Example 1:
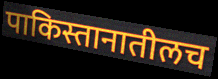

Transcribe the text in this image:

पाकिस्तानातीलच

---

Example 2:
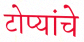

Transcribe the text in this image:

टोप्यांचे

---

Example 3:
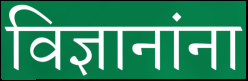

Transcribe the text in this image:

विज्ञानांना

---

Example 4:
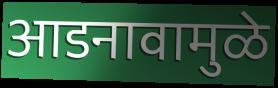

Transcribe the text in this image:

आडनावामुळे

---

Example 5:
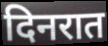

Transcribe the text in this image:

दिनरात